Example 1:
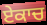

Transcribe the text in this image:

ਏਕਾਚ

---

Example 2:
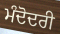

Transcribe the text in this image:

ਮੰਦੋਦਰੀ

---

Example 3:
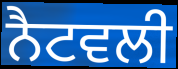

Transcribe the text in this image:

ਨੈਟਵਲੀ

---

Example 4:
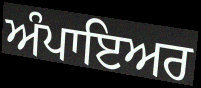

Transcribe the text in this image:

ਅੰਪਾਇਅਰ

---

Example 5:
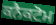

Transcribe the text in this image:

ਕਨੈਕਟੋਮ